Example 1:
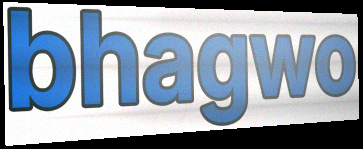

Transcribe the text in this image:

bhagwo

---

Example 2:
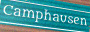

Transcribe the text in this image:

Camphausen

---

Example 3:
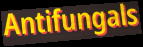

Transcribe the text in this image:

Antifungals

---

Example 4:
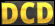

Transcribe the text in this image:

DCD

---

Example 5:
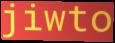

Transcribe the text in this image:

jiwto